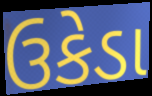
ઉકેડા